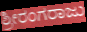
ಶ್ರೀರಂಗರಾಜು